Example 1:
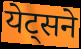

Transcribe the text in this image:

येट्सने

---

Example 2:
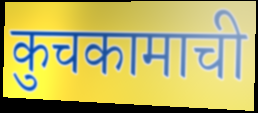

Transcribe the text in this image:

कुचकामाची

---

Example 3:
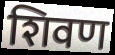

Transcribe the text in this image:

शिवण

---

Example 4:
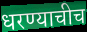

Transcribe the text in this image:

धरण्याचीच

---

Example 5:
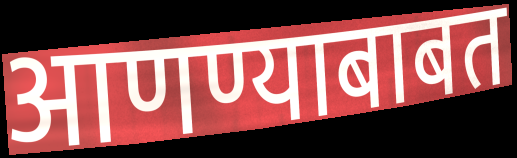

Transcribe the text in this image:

आणण्याबाबत